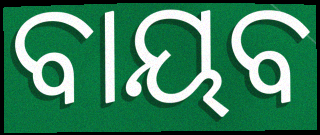
ବାୟବ